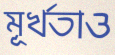
মূর্খতাও